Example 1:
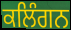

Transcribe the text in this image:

ਕਲਿੰਗਨ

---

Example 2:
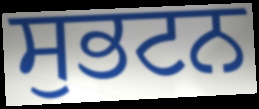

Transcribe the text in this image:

ਸੁਭਟਨ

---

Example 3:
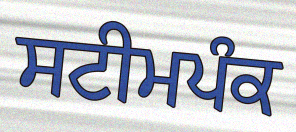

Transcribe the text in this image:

ਸਟੀਮਪੰਕ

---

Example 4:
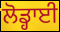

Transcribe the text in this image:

ਲੋਡ੍ਹਾਈ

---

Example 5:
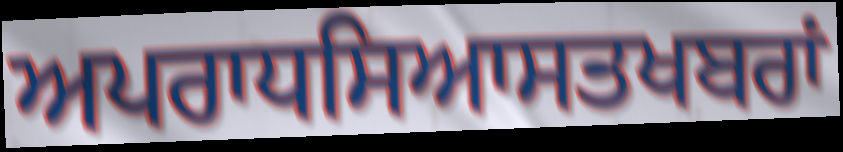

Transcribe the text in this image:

ਅਪਰਾਧਸਿਆਸਤਖਬਰਾਂ